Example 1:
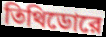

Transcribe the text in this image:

তিথিডোরে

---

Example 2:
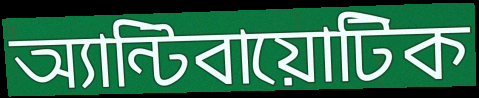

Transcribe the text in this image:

অ্যান্টিবায়োটিক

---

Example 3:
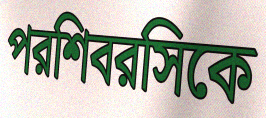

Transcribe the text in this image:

পরশিবরসিকে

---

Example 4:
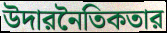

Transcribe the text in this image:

উদারনৈতিকতার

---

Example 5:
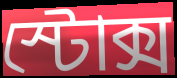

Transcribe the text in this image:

স্টোক্স